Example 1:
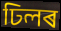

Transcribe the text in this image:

ঢিলৰ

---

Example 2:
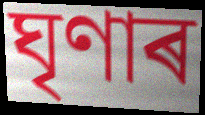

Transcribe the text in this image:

ঘৃণাৰ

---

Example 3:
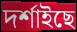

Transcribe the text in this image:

দৰ্শাইছে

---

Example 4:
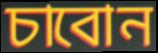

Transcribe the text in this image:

চাবোন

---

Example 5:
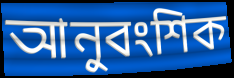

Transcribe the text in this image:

আনুবংশিক